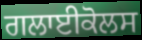
ਗਲਾਈਕੋਲਸ